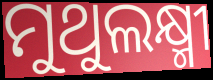
ମୁଥୁଲକ୍ଷ୍ମୀ